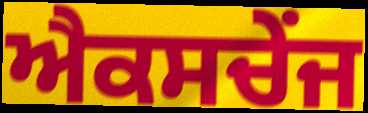
ਐਕਸਚੇਂਜ